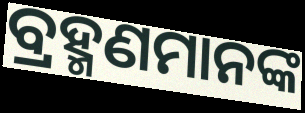
ବ୍ରହ୍ମଣମାନଙ୍କ